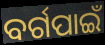
ବର୍ଗପାଇଁ